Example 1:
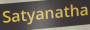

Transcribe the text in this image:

Satyanatha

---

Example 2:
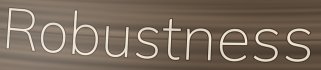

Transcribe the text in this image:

Robustness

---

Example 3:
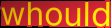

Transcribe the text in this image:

whould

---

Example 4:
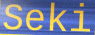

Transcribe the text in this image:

Seki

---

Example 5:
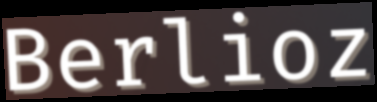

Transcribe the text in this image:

Berlioz